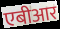
एबीआर